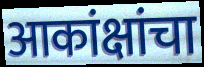
आकांक्षांचा